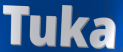
Tuka